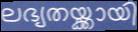
ലഭ്യതയ്ക്കായി